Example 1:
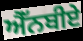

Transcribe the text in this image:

ਐੱਨਬੀਏ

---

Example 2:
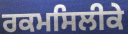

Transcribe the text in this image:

ਰਕਮਸਿਲੀਕੇ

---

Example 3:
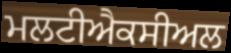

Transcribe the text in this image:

ਮਲਟੀਐਕਸੀਅਲ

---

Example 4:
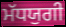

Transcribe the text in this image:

ਮੱਧਯੁਗੀ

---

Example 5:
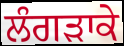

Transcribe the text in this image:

ਲੰਗੜਾਕੇ